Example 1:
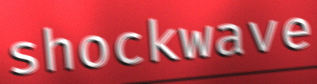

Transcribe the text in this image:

shockwave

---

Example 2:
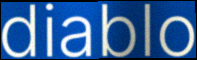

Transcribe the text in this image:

diablo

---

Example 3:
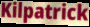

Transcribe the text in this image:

Kilpatrick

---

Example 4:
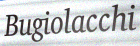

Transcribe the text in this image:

Bugiolacchi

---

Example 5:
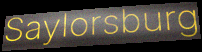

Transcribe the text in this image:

Saylorsburg